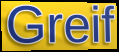
Greif